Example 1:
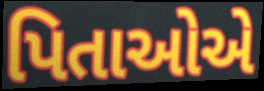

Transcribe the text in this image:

પિતાઓએ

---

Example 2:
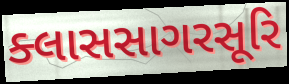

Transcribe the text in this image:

ક્લાસસાગરસૂરિ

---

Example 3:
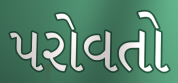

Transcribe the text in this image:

પરોવતો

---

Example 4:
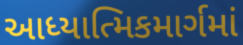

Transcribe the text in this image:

આધ્યાત્મિકમાર્ગમાં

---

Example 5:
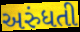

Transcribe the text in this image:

અરુંધતી